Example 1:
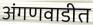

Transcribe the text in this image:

अंगणवाडीत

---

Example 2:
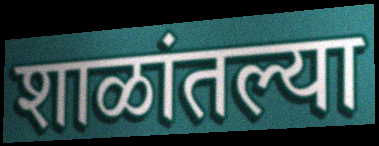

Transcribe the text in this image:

शाळांतल्या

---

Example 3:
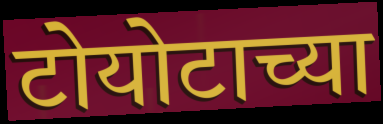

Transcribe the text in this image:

टोयोटाच्या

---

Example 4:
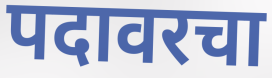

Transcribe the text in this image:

पदावरचा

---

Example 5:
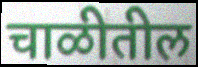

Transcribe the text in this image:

चाळीतील